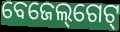
ବେଜେଲ୍‌ଗେଟ୍